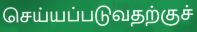
செய்யப்படுவதற்குச்